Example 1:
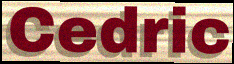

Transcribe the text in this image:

Cedric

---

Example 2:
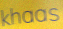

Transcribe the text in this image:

khaas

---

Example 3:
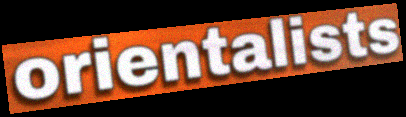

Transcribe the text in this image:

orientalists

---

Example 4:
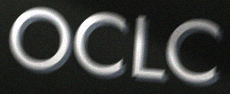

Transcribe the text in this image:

OCLC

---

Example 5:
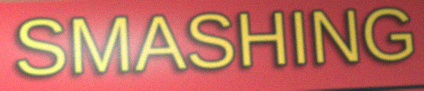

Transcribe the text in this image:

SMASHING